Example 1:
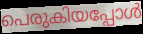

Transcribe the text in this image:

പെരുകിയപ്പോൾ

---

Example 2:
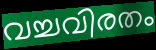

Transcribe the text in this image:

വച്ചവിരതം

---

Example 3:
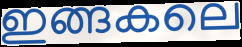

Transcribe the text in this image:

ഇങ്ങകലെ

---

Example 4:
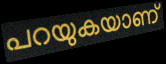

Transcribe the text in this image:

പറയുകയാണ്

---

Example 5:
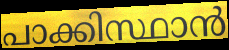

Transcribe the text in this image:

പാക്കിസ്ഥാൻ